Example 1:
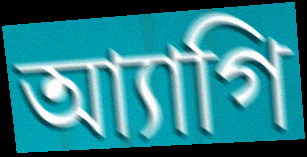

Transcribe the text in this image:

আ্যাগি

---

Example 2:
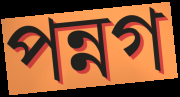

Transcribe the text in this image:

পন্নগ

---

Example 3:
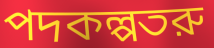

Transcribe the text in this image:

পদকল্পতরু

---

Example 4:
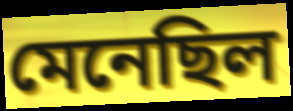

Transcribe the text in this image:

মেনেছিল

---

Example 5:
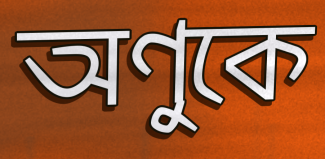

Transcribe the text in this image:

অণুকে